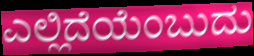
ಎಲ್ಲಿದೆಯೆಂಬುದು